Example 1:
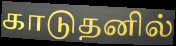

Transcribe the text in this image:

காடுதனில்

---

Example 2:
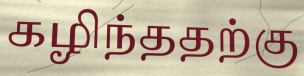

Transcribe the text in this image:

கழிந்ததற்கு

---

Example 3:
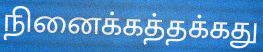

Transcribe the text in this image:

நினைக்கத்தக்கது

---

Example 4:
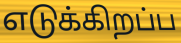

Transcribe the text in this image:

எடுக்கிறப்ப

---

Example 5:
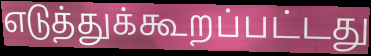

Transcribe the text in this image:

எடுத்துக்கூறப்பட்டது